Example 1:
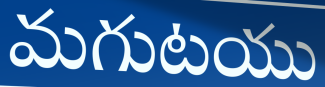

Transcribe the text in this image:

మగుటయు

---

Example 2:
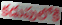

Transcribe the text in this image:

కడుపులోకి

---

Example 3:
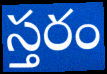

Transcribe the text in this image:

స్తరం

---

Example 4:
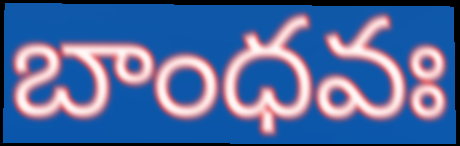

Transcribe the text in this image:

బాంధవః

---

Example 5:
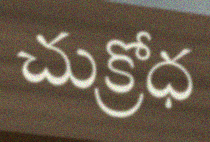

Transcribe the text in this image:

చుక్రోధ